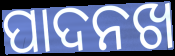
ପାଦନଖ